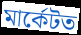
মাৰ্কেটত